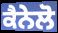
ਕੈਨੇਲੋ